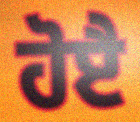
ਹੋੲੈ